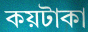
কয়টাকা